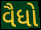
વૈધો